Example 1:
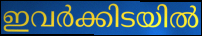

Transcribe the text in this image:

ഇവർക്കിടയിൽ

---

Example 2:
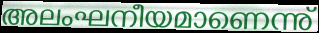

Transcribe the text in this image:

അലംഘനീയമാണെന്നു്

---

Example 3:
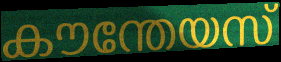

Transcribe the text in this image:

കൗന്തേയസ്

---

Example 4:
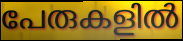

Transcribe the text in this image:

പേരുകളിൽ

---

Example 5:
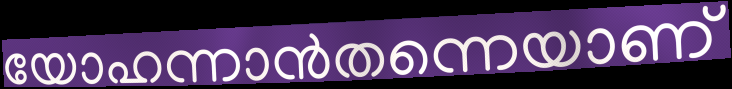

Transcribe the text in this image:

യോഹന്നാൻതന്നെയാണ്